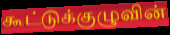
கூட்டுக்குழுவின்